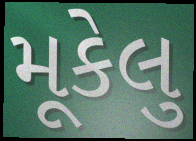
મૂકેલુ